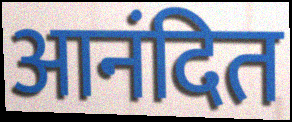
आनंदित